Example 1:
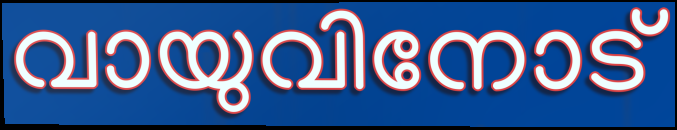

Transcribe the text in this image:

വായുവിനോട്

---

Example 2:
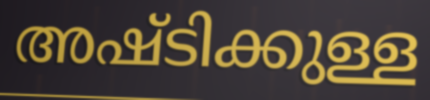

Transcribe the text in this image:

അഷ്ടിക്കുള്ള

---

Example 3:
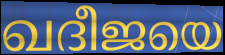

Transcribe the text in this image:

ഖദീജയെ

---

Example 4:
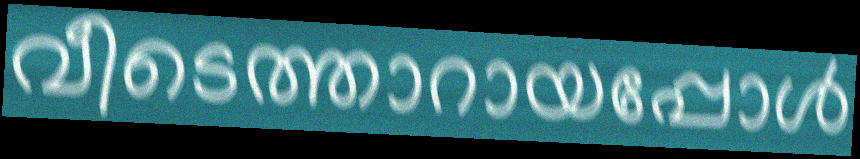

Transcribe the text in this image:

വീടെത്താറായപ്പോൾ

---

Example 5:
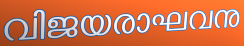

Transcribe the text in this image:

വിജയരാഘവനു